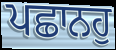
ਪਛਾਨਹੁ